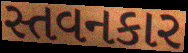
સ્તવનકાર